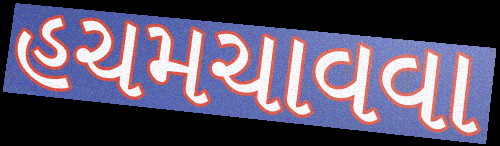
હચમચાવવા